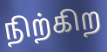
நிற்கிற